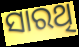
ସାରଥି